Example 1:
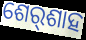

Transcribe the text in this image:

ଶେର୍‌ଶାହ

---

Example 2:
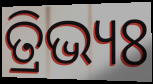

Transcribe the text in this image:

ତ୍ରିଭ୍ୟଃ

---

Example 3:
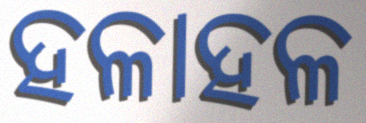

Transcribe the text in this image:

ହଳାହଳ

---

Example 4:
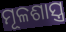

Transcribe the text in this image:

ମୂଳଶାସ୍ତ୍ର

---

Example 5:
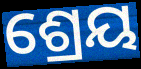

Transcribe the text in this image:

ଶ୍ରେୟ